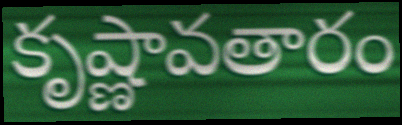
కృష్ణావతారం